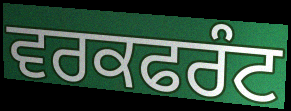
ਵਰਕਫਰੰਟ